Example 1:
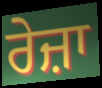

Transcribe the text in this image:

ਰੇਜ਼ਾ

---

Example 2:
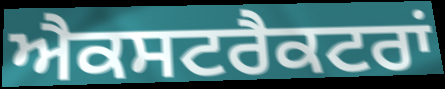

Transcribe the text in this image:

ਐਕਸਟਰੈਕਟਰਾਂ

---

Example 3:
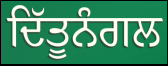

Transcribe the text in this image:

ਦਿੱਤੂਨੰਗਲ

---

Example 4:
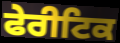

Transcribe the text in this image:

ਫੇਰੀਟਿਕ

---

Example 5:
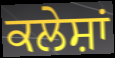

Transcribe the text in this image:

ਕਲੇਸ਼ਾਂ